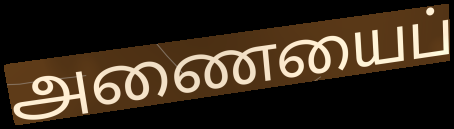
அணையைப்